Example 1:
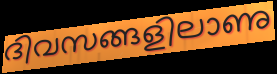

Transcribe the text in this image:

ദിവസങ്ങളിലാണു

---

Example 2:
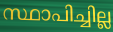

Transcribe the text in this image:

സ്ഥാപിച്ചില്ല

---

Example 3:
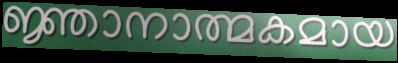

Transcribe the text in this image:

ജ്ഞാനാത്മകമായ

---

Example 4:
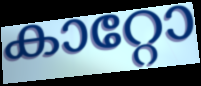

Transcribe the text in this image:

കാറ്റോ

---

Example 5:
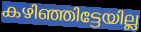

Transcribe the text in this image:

കഴിഞ്ഞിട്ടേയില്ല